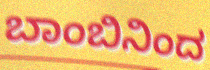
ಬಾಂಬಿನಿಂದ